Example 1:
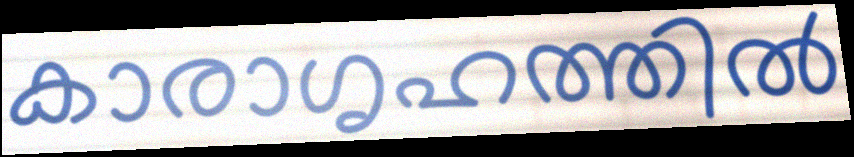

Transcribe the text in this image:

കാരാഗൃഹത്തിൽ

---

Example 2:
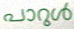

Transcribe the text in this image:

പാറുൾ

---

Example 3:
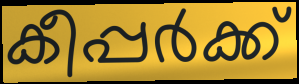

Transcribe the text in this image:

കീപ്പർക്ക്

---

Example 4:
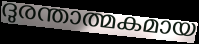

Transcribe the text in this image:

ദുരന്താത്മകമായ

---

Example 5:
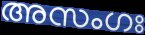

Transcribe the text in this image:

അസംഗഃ